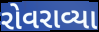
રોવરાવ્યા